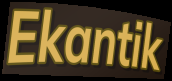
Ekantik